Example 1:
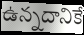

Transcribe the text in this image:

ఉన్నదానికే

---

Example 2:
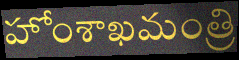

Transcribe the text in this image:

హోంశాఖమంత్రి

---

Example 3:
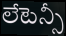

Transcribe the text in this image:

లేటెన్సీ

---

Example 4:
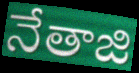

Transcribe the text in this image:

నేతాజి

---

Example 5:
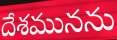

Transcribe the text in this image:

దేశమునను